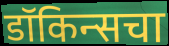
डॉकिन्सचा